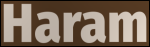
Haram